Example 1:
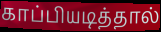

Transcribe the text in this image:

காப்பியடித்தால்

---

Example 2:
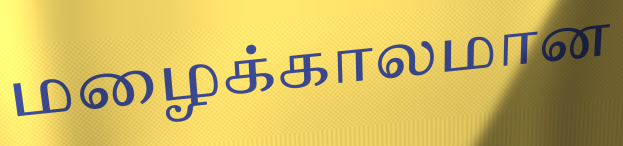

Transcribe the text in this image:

மழைக்காலமான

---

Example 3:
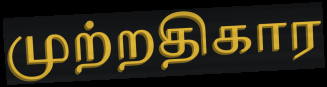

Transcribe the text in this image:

முற்றதிகார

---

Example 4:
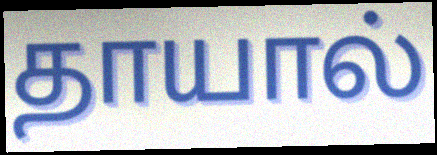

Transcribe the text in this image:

தாயால்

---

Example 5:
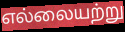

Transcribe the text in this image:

எல்லையற்று